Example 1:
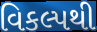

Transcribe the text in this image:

વિકલ્પથી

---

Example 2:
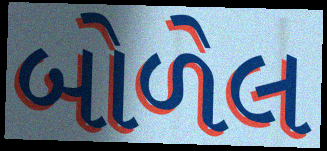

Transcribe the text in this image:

બોળેલ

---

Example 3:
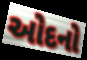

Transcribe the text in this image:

ઓદનો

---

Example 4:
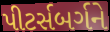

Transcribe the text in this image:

પીટર્સબર્ગને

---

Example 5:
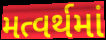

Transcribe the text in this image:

મત્વર્થમાં